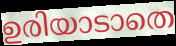
ഉരിയാടാതെ